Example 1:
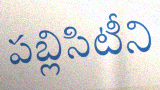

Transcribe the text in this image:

పబ్లిసిటీని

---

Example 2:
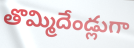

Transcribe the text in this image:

తొమ్మిదేండ్లుగా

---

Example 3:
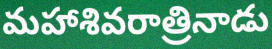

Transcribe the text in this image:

మహాశివరాత్రినాడు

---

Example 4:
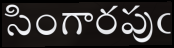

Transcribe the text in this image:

సింగారపుఁ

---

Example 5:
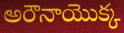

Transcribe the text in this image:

అరౌనాయొక్క